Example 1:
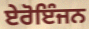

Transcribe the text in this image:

ਏਰੋਇੰਜਨ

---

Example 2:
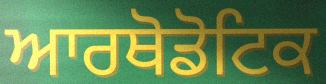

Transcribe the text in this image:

ਆਰਥੋਡੋਟਿਕ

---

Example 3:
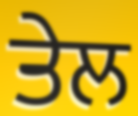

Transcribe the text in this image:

ਤੇਲ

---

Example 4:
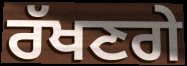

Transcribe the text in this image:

ਰੱਖਣਗੇ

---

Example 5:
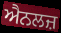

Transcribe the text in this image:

ਐਨਲਜ਼